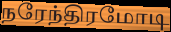
நரேந்திரமோடி